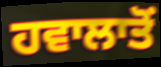
ਹਵਾਲਾਤੋਂ